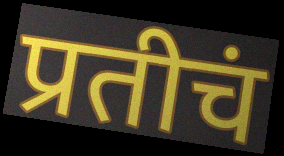
प्रतीचं